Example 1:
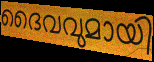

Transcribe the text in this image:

ദൈവവുമായി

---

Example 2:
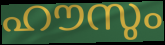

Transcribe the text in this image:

ഹൗസും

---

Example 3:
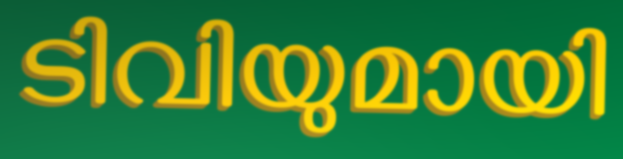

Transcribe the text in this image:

ടിവിയുമായി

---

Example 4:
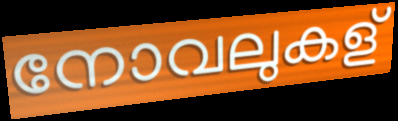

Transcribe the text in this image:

നോവലുകള്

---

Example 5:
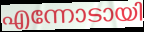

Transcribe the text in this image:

എന്നോടായി